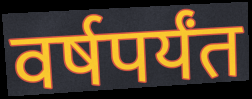
वर्षपर्यंत